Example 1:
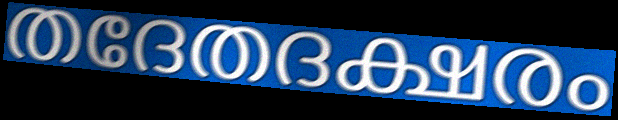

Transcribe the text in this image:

തദേതദക്ഷരം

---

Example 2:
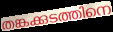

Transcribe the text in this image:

തങ്കക്കുടത്തിനെ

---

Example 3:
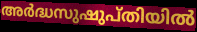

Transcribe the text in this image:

അർദ്ധസുഷുപ്തിയിൽ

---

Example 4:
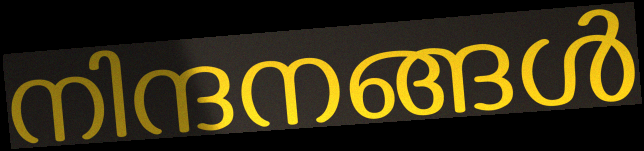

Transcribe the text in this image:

നിന്ദനങ്ങൾ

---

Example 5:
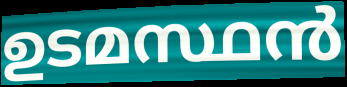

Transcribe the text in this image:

ഉടമസ്ഥൻ